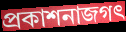
প্রকাশনাজগৎ